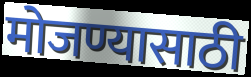
मोजण्यासाठी